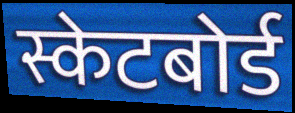
स्केटबोर्ड